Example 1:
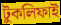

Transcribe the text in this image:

টুকলিফাই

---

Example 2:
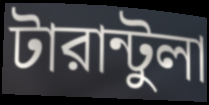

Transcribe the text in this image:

টারান্টুলা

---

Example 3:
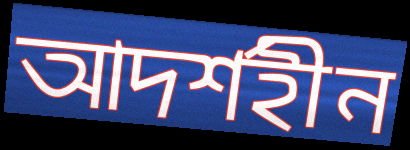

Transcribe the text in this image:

আদর্শহীন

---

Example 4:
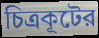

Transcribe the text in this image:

চিত্রকূটের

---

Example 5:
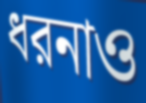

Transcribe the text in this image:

ধরনাও